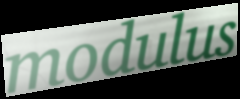
modulus